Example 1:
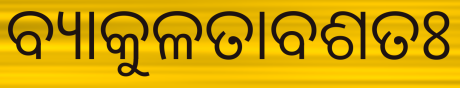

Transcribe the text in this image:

ବ୍ୟାକୁଳତାବଶତଃ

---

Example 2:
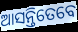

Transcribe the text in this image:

ଆସନ୍ତିତେବେ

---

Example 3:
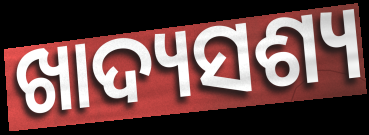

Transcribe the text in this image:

ଖାଦ୍ୟସଶ୍ୟ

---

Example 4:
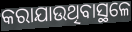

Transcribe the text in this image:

କରାଯାଉଥିବାସ୍ଥଳେ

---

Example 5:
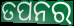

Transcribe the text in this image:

ତପନର